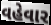
વહેવાર